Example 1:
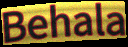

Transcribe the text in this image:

Behala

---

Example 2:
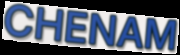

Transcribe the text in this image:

CHENAM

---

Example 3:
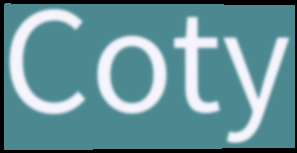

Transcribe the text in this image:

Coty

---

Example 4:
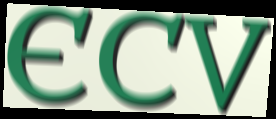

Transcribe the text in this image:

ECV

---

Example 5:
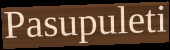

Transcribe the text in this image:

Pasupuleti